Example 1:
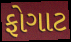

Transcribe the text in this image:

ફોગાટ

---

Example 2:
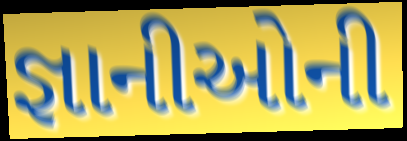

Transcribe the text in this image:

જ્ઞાનીઓની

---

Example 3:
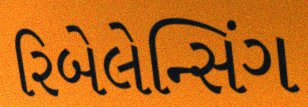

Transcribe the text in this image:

રિબેલેન્સિંગ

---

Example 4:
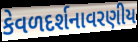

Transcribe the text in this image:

કેવળદર્શનાવરણીય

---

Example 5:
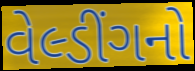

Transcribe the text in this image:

વેલ્ડીંગનો